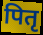
पितृ